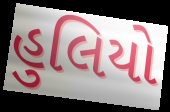
હુલિયો